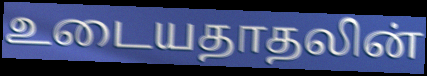
உடையதாதலின்